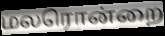
மலரொன்றை